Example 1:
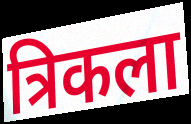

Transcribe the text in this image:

त्रिकला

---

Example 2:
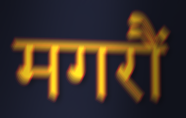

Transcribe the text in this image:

मगरौं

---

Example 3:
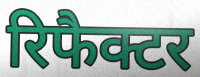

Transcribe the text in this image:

रिफैक्टर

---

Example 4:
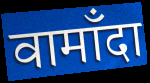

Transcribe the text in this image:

वामाँदा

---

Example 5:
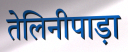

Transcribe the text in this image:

तेलिनीपाड़ा